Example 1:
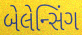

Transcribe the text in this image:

બેલેન્સિંગ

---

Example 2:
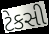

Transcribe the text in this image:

ટેકસી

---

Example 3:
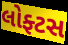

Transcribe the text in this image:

લોફ્ટસ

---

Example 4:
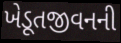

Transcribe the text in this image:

ખેડૂતજીવનની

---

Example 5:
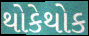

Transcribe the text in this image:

થોકેથોક